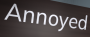
Annoyed